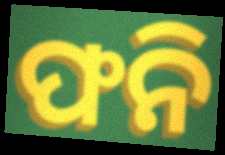
ଫନି